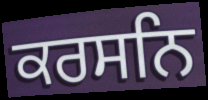
ਕਰਸਨਿ